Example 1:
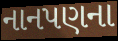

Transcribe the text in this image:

નાનપણના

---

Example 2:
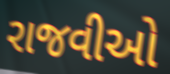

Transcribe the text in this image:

રાજવીઓ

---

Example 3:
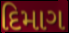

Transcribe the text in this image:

દિમાગ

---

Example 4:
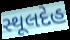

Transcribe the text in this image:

સ્થૂલદેહ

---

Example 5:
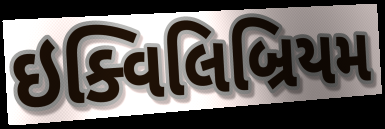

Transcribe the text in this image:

ઇક્વિલિબ્રિયમ